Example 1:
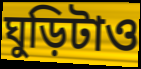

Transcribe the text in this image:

ঘুড়িটাও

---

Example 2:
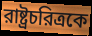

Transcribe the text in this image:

রাষ্ট্রচরিত্রকে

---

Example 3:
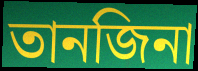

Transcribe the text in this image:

তানজিনা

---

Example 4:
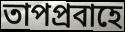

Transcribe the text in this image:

তাপপ্রবাহে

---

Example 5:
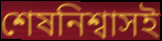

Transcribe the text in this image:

শেষনিশ্বাসই